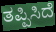
ತಪ್ಪಿಸಿದೆ